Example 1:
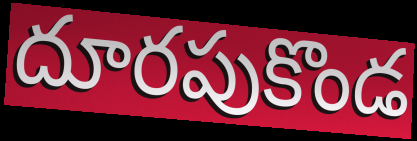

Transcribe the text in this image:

దూరపుకొండ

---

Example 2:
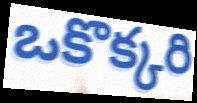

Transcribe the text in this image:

ఒకొక్కరి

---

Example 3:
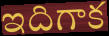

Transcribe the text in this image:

ఇదిగాక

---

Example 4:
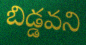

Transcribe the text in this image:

బిడ్డవని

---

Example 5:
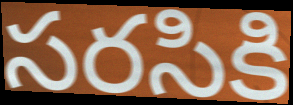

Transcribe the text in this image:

సరసికి